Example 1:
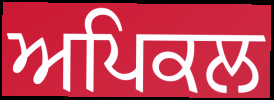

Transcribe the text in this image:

ਅਪਿਕਲ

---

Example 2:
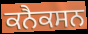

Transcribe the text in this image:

ਕਨੈਕਸਨ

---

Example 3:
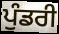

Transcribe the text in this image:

ਪੁੰਡਰੀ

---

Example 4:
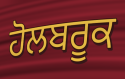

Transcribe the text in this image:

ਹੋਲਬਰੂਕ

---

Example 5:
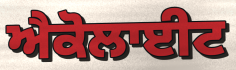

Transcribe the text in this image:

ਐਕੋਲਾਈਟ